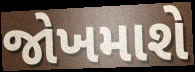
જોખમાશે